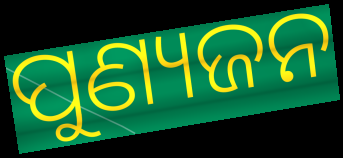
ପୁଣ୍ୟଜନ